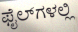
ಫೈಲ್‌ಗಳಲ್ಲಿ